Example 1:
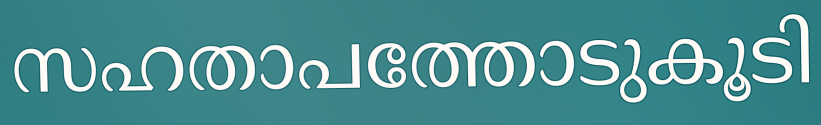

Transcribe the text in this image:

സഹതാപത്തോടുകൂടി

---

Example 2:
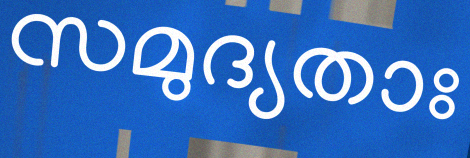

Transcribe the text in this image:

സമുദ്യതാഃ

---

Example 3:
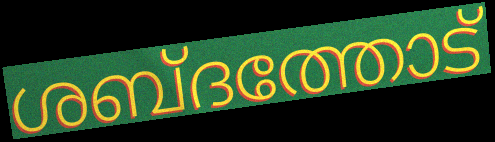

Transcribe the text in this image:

ശബ്ദത്തോട്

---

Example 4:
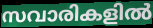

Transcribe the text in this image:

സവാരികളിൽ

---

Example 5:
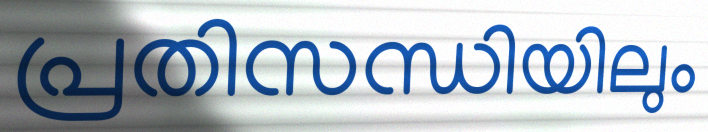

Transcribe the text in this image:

പ്രതിസന്ധിയിലും